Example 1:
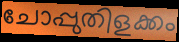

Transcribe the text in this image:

ചോപ്പുതിളക്കം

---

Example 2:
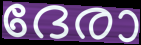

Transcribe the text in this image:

ദേരാ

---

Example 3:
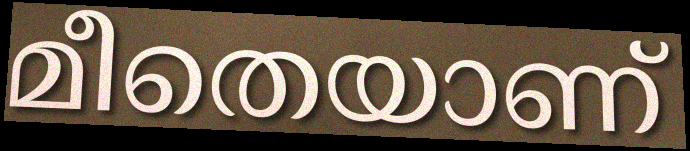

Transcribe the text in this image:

മീതെയാണ്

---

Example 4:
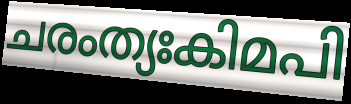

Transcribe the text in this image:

ചരംത്യഃകിമപി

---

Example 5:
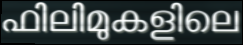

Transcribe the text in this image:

ഫിലിമുകളിലെ